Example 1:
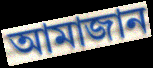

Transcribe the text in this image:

আমাজান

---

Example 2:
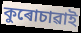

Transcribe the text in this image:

কুৰোচাৱাই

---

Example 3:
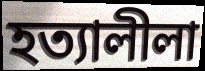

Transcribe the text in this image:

হত্যালীলা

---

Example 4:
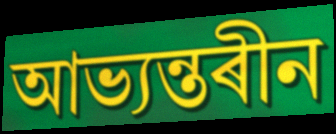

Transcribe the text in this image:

আভ্যন্তৰীন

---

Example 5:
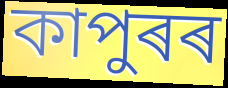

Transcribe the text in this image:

কাপুৰৰ